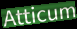
Atticum